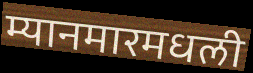
म्यानमारमधली